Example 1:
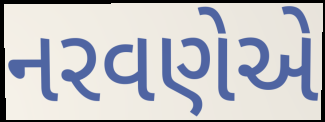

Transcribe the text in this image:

નરવણેએ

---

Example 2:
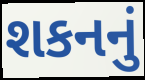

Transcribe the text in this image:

શકનનું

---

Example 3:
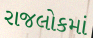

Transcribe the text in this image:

રાજલોકમાં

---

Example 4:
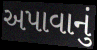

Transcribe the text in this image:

અપાવાનું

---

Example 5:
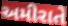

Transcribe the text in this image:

અમીરાતે